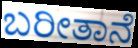
ಬರೀತಾನೆ